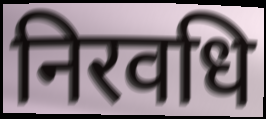
निरवधि